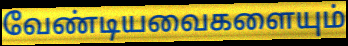
வேண்டியவைகளையும்